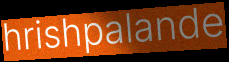
hrishpalande